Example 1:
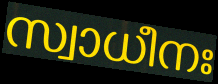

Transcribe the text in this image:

സ്വാധീനഃ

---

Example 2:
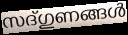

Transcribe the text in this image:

സദ്ഗുണങ്ങൾ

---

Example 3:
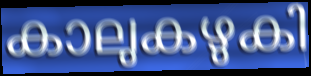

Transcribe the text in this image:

കാലുകഴുകി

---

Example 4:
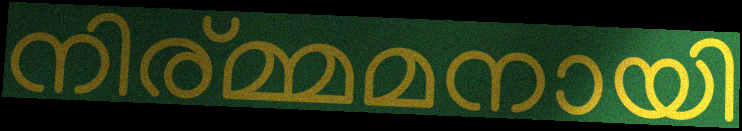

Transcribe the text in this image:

നിര്മ്മമനായി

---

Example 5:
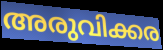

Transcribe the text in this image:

അരുവിക്കര